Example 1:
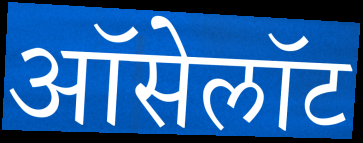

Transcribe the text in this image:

ऑसेलॉट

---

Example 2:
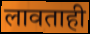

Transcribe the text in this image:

लावताही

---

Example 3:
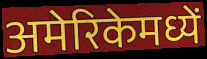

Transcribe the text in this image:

अमेरिकेमध्यें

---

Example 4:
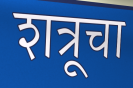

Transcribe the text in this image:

शत्रूचा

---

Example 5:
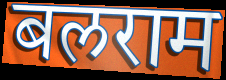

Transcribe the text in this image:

बलराम